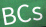
BCs